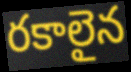
రకాలైన